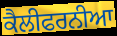
ਕੈਲੀਫਰਨੀਆ